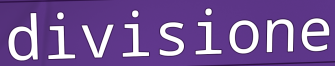
divisione